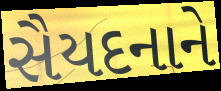
સૈયદનાને